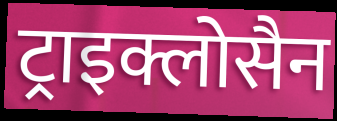
ट्राइक्लोसैन